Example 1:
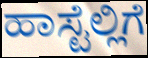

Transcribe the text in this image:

ಹಾಸ್ಟೆಲ್ಲಿಗೆ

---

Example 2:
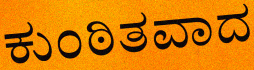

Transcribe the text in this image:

ಕುಂಠಿತವಾದ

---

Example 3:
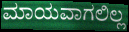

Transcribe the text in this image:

ಮಾಯವಾಗಲಿಲ್ಲ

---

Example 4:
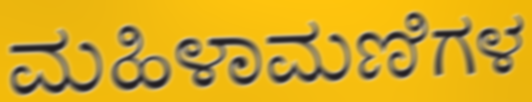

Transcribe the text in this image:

ಮಹಿಳಾಮಣಿಗಳ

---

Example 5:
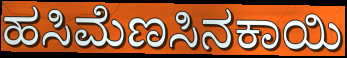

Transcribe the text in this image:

ಹಸಿಮೆಣಸಿನಕಾಯಿ